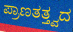
ಪ್ರಾಣತತ್ತ್ವದ